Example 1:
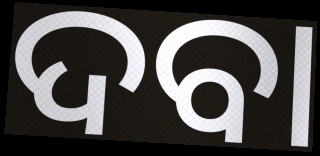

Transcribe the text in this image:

ଦବା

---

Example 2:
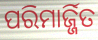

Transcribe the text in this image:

ପରିମାର୍ଜ୍ଜିତ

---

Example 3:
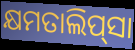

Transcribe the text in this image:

କ୍ଷମତାଲିପ୍‍ସା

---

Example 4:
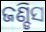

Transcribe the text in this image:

ଜଣ୍ଡିସ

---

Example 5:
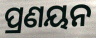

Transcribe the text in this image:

ପ୍ରଣୟନ